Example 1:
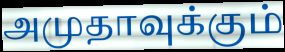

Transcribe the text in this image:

அமுதாவுக்கும்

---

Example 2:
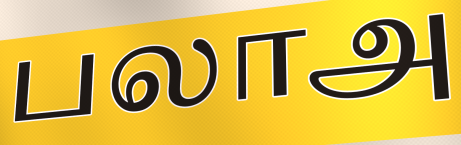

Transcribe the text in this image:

பலாஅ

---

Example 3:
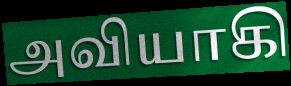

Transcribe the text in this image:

அவியாகி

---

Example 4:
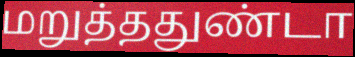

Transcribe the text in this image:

மறுத்ததுண்டா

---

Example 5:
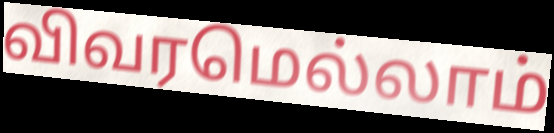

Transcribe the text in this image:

விவரமெல்லாம்